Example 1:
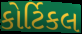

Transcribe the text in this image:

કોર્ટિકલ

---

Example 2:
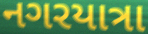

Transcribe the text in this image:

નગરયાત્રા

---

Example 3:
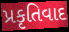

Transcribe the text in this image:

પ્રકૃતિવાદ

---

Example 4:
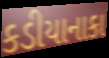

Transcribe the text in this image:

કડીયાનાકા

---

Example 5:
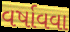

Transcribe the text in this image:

વર્ષાવવા